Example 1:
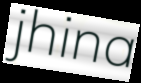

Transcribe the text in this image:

jhina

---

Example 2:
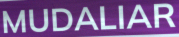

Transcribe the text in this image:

MUDALIAR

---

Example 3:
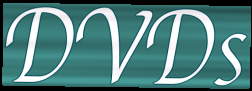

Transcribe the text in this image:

DVDs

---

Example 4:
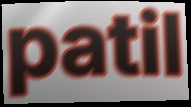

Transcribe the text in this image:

patil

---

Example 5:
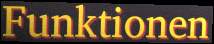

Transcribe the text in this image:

Funktionen